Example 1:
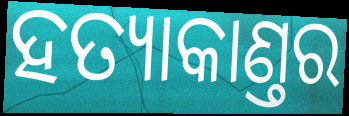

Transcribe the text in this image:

ହତ୍ୟାକାଣ୍ତର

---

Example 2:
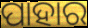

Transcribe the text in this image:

ପାହାର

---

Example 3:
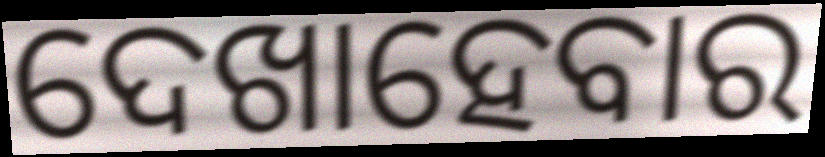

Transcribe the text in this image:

ଦେଖାହେବାର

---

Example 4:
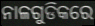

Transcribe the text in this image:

ନାଳଗୁଡିକରେ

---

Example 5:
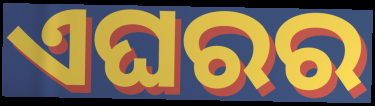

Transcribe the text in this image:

ଏଘରର